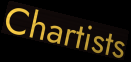
Chartists